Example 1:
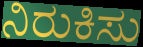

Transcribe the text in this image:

ನಿರುಕಿಸು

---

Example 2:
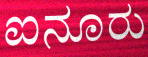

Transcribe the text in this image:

ಐನೂರು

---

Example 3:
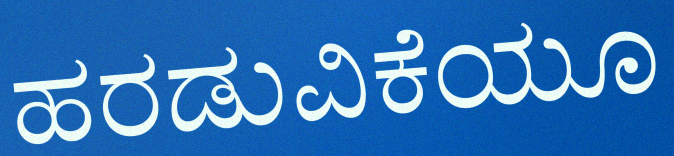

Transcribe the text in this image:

ಹರಡುವಿಕೆಯೂ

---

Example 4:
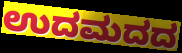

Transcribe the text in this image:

ಉದಮದದ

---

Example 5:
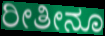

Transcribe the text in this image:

ರೀತೀನೂ